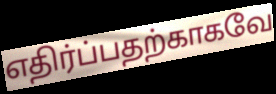
எதிர்ப்பதற்காகவே